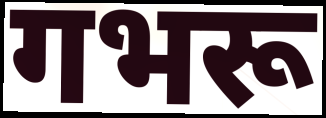
गभरू